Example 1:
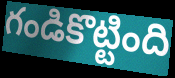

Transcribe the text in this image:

గండికొట్టింది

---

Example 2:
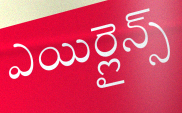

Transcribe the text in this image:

ఎయిర్లైన్స్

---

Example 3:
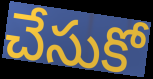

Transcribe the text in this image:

చేసుకో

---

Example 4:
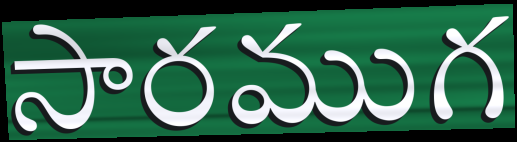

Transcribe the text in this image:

సారముగ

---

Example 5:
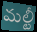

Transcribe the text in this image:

మల్టీ